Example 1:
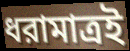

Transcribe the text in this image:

ধরামাত্রই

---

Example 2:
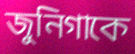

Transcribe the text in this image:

জুনিগাকে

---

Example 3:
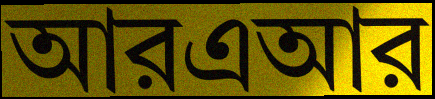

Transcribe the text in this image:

আরএআর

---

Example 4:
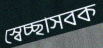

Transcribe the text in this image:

স্বেচ্ছাসবক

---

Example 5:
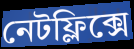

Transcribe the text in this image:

নেটফ্লিক্সে